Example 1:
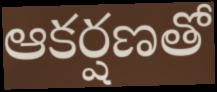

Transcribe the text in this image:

ఆకర్షణతో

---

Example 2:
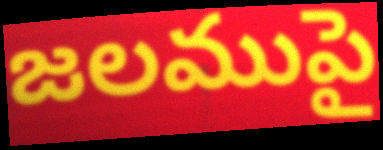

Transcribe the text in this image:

జలముపై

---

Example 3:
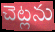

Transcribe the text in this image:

చెట్లను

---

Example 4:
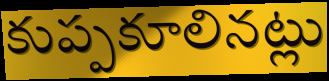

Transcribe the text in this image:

కుప్పకూలినట్లు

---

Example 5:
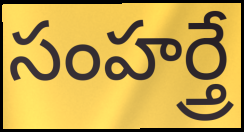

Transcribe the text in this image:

సంహర్త్రే